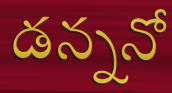
డన్ననో